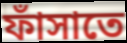
ফাঁসাতে